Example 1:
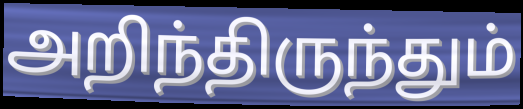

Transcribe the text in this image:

அறிந்திருந்தும்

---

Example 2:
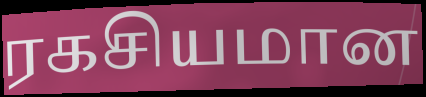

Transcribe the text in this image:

ரகசியமான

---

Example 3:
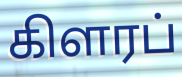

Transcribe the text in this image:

கிளரப்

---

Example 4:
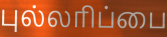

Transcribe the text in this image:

புல்லரிப்பை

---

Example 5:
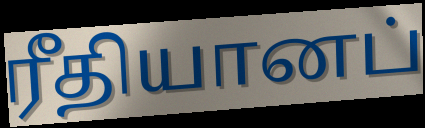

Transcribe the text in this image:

ரீதியானப்